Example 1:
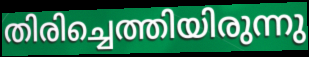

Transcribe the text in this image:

തിരിച്ചെത്തിയിരുന്നു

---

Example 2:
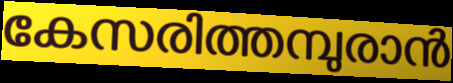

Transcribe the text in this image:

കേസരിത്തമ്പുരാൻ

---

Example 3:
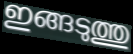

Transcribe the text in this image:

ഇങ്ങടുത്തു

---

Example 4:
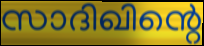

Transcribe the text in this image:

സാദിഖിന്റെ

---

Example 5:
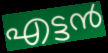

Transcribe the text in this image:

എട്ടൻ